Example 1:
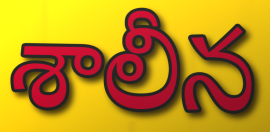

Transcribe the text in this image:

శాలీన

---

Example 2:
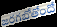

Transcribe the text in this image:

జరగబోతోందో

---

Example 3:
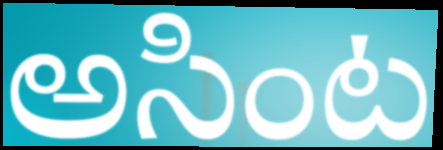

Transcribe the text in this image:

అసింట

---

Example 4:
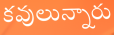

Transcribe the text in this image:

కవులున్నారు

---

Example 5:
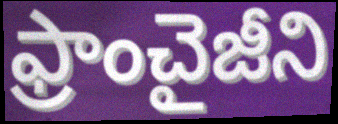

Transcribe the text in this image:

ఫ్రాంచైజీని